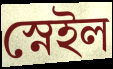
স্নেইল